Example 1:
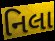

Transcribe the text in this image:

નિલા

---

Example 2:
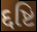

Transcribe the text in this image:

દ્દષ્ટિ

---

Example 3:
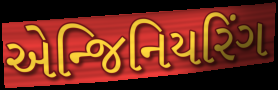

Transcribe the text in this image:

એન્જિનિયરિંગ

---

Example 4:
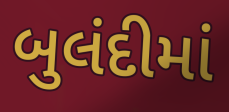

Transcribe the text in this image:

બુલંદીમાં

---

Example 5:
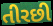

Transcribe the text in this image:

તીરછી